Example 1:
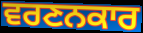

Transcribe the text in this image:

ਵਰਣਨਕਾਰ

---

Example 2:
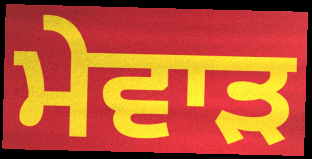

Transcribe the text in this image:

ਮੇਵਾੜ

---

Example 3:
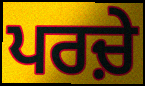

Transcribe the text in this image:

ਪਰਚ਼ੇ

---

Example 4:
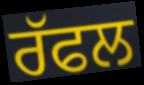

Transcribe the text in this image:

ਰੱਫਲ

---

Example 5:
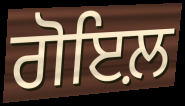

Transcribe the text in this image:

ਗੋਇਲ਼